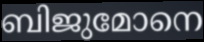
ബിജുമോനെ